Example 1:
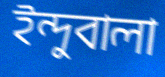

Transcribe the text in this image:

ইন্দুবালা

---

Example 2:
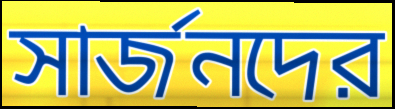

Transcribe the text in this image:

সার্জনদের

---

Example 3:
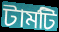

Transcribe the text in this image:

টার্মটি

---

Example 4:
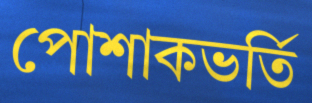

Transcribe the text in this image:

পোশাকভর্তি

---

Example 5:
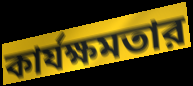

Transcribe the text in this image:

কার্যক্ষমতার